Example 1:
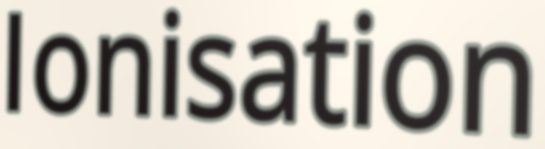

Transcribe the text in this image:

Ionisation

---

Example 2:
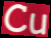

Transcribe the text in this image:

Cu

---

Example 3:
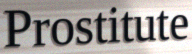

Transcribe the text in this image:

Prostitute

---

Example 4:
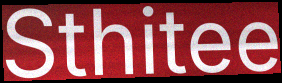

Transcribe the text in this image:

Sthitee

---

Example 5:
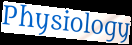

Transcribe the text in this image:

Physiology